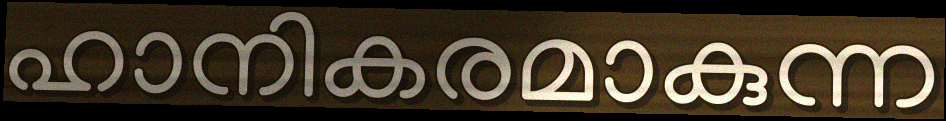
ഹാനികരമാകുന്ന